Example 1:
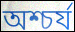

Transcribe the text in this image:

অশ্চর্য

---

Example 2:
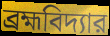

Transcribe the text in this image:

ব্রহ্মবিদ্যার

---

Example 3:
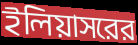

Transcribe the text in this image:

ইলিয়াসরের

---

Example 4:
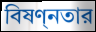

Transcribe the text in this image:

বিষণ্নতার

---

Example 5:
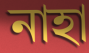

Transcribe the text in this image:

নাহা